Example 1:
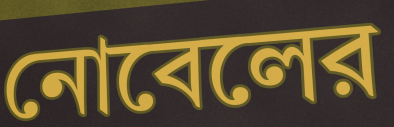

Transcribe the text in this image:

নোবেলের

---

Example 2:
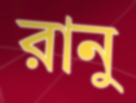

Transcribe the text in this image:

রানু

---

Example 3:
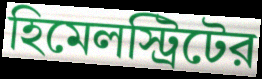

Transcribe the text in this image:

হিমেলস্ট্রিটের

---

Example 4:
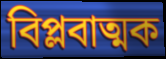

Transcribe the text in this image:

বিপ্লবাত্মক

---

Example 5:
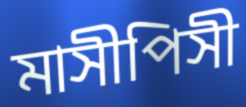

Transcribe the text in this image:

মাসীপিসী